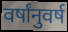
वर्षांनुवर्ष